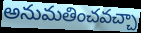
అనుమతించవచ్చా